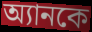
অ্যানকে